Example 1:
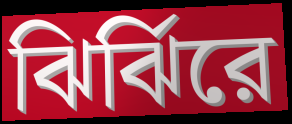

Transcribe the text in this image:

ঝির্ঝিরে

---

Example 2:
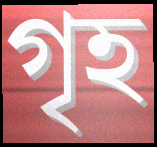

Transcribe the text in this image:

গৃহ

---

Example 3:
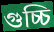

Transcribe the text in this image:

গুচ্চি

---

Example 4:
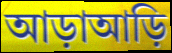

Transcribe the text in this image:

আড়াআড়ি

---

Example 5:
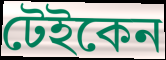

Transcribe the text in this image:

টেইকেন